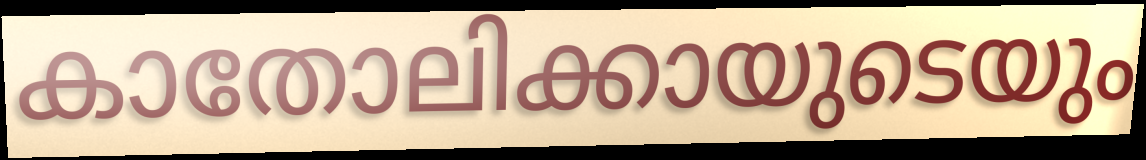
കാതോലിക്കായുടെയും